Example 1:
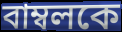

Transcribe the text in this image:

বাম্বলকে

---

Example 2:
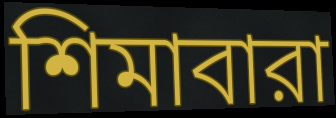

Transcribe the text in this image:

শিমাবারা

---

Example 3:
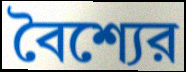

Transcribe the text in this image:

বৈশ্যের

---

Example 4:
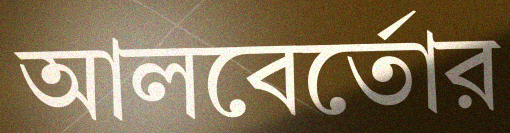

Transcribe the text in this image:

আলবের্তোর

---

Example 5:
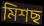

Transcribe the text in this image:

মিশছ